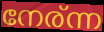
നേര്ന്ന